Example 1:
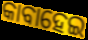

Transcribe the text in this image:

କାବାହେଇ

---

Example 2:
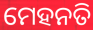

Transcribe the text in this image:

ମେହନତି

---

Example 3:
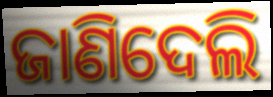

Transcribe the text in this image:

ଜାଣିଦେଲି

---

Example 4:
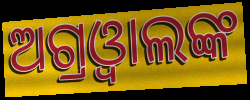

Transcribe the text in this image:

ଅଗ୍ରଓ୍ବାଲଙ୍କ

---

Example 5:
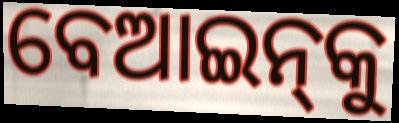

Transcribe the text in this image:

ବେଆଇନ୍‌କୁ